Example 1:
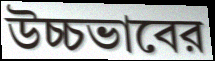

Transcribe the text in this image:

উচ্চভাবের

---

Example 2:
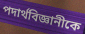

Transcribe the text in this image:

পদার্থবিজ্ঞানীকে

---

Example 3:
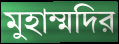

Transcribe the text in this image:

মুহাম্মদির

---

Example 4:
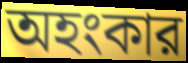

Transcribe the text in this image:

অহংকার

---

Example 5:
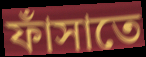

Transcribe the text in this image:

ফাঁসাতে